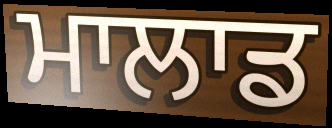
ਮਾਲਾਡ